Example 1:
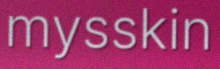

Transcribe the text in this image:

mysskin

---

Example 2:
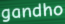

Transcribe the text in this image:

gandho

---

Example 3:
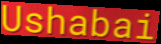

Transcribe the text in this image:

Ushabai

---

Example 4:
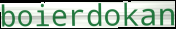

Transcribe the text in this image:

boierdokan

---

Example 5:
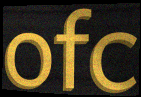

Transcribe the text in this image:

ofc